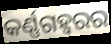
କର୍ଣ୍ଣଗହ୍ୱରର